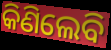
କିଣିଲେବି